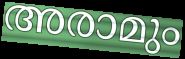
അരാമും